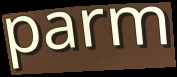
parm